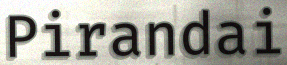
Pirandai